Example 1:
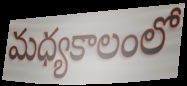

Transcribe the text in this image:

మధ్యకాలంలో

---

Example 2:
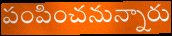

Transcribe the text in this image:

పంపించనున్నారు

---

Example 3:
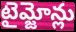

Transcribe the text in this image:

టైమ్జోన్లు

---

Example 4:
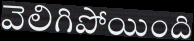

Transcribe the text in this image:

వెలిగిపోయింది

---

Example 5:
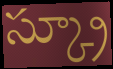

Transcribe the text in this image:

స్క్రూ